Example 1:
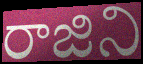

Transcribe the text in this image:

రాజిని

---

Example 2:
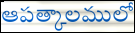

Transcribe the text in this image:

ఆపత్కాలములో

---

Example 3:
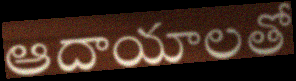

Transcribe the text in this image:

ఆదాయాలతో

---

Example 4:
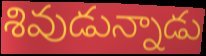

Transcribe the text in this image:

శివుడున్నాడు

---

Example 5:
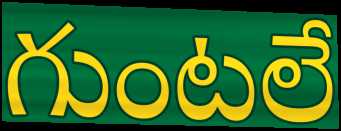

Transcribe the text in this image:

గుంటలే